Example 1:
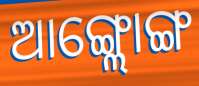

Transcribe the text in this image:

ଆଙ୍ଗ୍ଲୋଙ୍ଗ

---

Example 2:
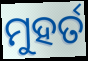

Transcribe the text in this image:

ମୁହର୍ତ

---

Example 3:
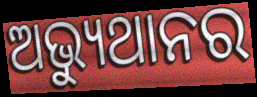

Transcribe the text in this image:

ଅଭ୍ୟୁଥାନର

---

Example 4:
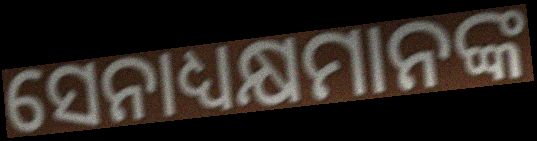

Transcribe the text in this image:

ସେନାଧ୍ୟକ୍ଷମାନଙ୍କ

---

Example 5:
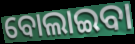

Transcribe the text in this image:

ବୋଲାଇବା